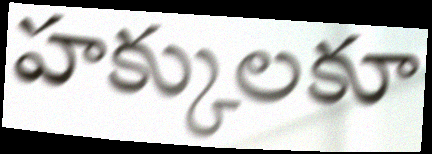
హక్కులకూ